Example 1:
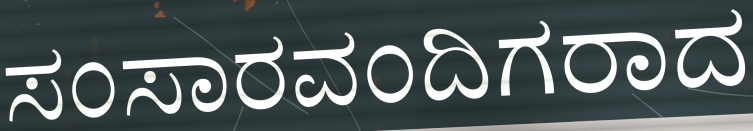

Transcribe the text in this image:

ಸಂಸಾರವಂದಿಗರಾದ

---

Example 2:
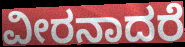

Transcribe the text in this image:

ವೀರನಾದರೆ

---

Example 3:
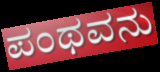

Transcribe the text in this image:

ಪಂಥವನು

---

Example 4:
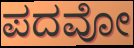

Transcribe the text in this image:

ಪದವೋ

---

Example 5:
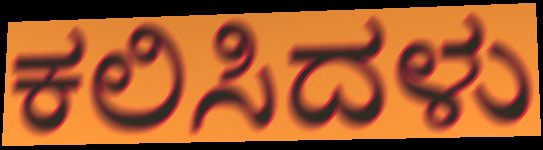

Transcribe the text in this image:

ಕಲಿಸಿದಳು